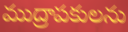
ముద్రాపకులను